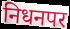
निधनपर